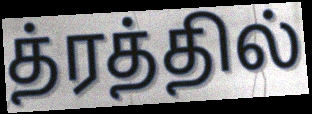
த்ரத்தில்